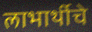
लाभार्थीचे